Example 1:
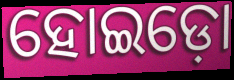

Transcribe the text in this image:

ହୋଇଡ଼ୋ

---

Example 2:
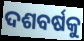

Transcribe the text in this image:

ଦଶବର୍ଷକୁ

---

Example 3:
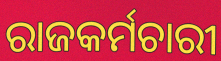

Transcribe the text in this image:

ରାଜକର୍ମଚାରୀ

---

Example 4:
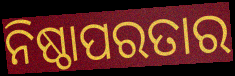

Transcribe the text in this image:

ନିଷ୍ଠାପରତାର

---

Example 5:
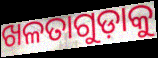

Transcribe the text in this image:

ଖଳତାଗୁଡ଼ାକୁ